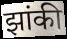
झांकी